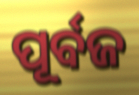
ପୂର୍ବଜ